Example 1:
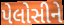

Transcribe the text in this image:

પેલોસીને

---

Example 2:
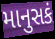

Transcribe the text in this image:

માનુસકં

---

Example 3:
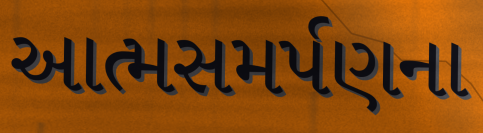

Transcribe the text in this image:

આત્મસમર્પણના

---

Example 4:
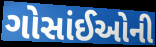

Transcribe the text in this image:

ગોસાંઈઓની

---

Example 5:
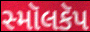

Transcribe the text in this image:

સ્મૉલકૅપ